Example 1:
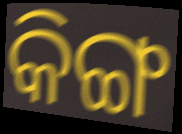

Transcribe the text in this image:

କିଙ୍ଗ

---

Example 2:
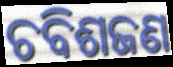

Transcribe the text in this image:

ଚବିଶଜଣ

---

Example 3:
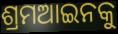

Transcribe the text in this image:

ଶ୍ରମଆଇନକୁ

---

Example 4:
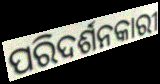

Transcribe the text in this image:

ପରିଦର୍ଶନକାରୀ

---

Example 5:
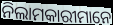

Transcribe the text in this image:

ନିଲାମକାରୀମାନେ